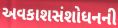
અવકાશસંશોધનની